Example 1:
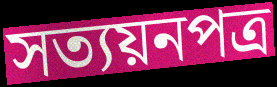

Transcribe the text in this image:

সত্যয়নপত্র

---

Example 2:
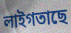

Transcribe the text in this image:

লাইগতাছে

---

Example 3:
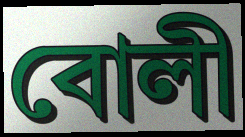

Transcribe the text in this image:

বোলী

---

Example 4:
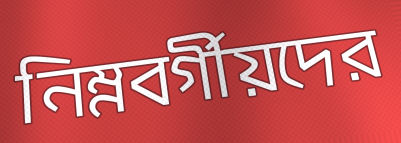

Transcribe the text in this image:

নিম্নবর্গীয়দের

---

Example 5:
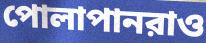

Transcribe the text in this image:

পোলাপানরাও